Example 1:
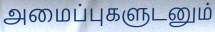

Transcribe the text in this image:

அமைப்புகளுடனும்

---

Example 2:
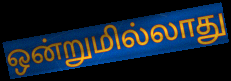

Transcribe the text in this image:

ஒன்றுமில்லாது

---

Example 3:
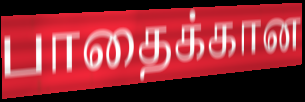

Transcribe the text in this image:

பாதைக்கான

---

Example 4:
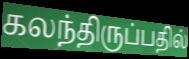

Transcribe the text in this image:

கலந்திருப்பதில்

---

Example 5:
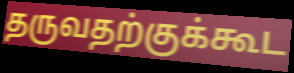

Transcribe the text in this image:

தருவதற்குக்கூட